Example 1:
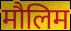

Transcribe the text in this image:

मौलिम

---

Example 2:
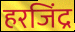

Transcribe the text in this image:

हरजिंद्र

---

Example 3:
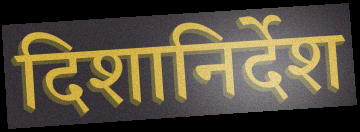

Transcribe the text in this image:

दिशानिर्देश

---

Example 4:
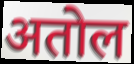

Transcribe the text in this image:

अतोल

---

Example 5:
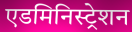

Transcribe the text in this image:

एडमिनिस्‍ट्रेशन